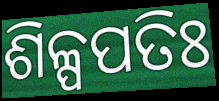
ଶିଳ୍ପପତିଃ